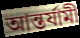
আন্তর্যামী